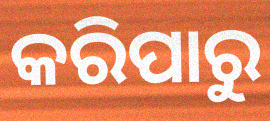
କରିପାରୁ